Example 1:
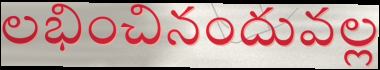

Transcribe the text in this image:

లభించినందువల్ల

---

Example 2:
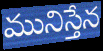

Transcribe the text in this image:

మునిస్తేన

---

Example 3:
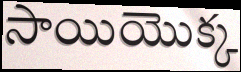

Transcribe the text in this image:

సాయియొక్క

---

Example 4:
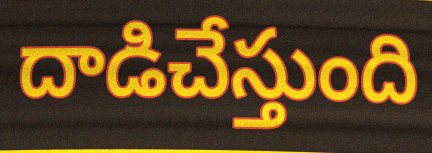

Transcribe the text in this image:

దాడిచేస్తుంది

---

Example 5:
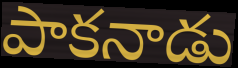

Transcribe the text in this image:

పాకనాడు